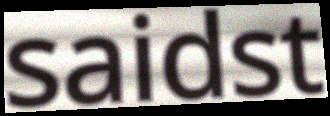
saidst